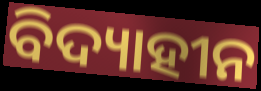
ବିଦ୍ୟାହୀନ